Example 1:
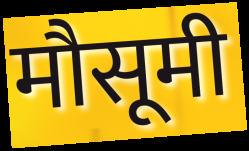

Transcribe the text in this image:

मौसूमी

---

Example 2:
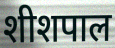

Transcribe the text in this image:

शीशपाल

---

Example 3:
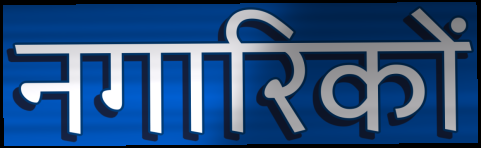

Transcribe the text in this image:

नगारिकों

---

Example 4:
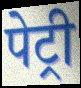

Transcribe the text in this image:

पेट्री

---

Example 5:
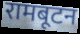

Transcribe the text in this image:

रामबूटन